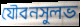
যৌবনসুলভ